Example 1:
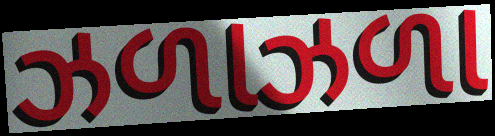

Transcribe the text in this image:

ઝળાઝળા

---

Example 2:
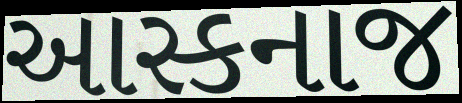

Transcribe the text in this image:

આસ્કનાજ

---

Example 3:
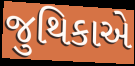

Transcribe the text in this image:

જુથિકાએ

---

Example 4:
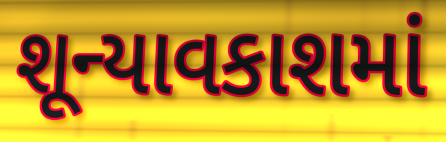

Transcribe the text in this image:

શૂન્યાવકાશમાં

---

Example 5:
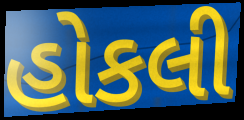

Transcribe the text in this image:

હોકલી